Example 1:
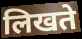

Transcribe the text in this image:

लिखते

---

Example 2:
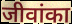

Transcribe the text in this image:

जीवांका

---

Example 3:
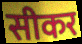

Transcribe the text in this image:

सीकर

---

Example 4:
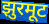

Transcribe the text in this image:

झुरमूट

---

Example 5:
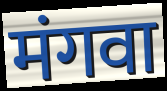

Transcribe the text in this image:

मंगवा